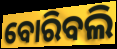
ବୋରିବଲି